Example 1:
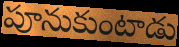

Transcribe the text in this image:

పూనుకుంటాడు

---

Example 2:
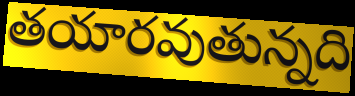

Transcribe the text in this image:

తయారవుతున్నది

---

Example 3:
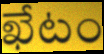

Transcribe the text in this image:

ఖేటం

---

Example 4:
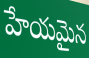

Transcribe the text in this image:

హేయమైన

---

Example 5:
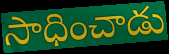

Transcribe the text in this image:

సాధించాడు